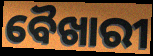
ବୈଖାରୀ